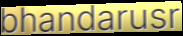
bhandarusr